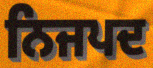
ਨਿਜਪਦ